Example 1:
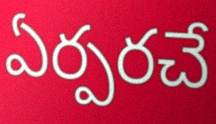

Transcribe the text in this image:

ఏర్పరచే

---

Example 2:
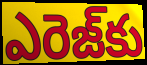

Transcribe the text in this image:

ఎరెజ్‌కు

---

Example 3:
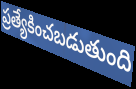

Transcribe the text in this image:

ప్రత్యేకించబడుతుంది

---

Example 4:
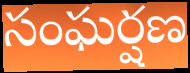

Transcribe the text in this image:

సంఘర్షణ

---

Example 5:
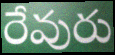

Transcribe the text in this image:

రేవురు